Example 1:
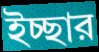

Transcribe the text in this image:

ইচ্ছার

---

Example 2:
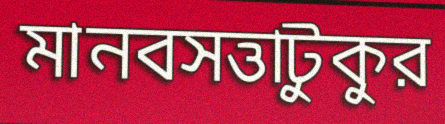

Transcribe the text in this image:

মানবসত্তাটুকুর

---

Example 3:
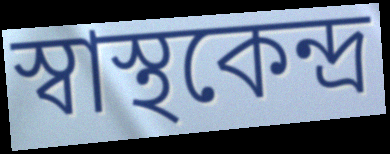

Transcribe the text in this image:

স্বাস্থকেন্দ্র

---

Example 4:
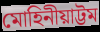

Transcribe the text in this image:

মোহিনীয়াট্টম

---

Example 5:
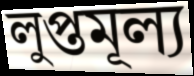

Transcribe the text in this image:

লুপ্তমূল্য